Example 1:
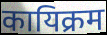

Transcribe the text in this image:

कायिक्रम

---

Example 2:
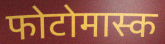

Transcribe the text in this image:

फोटोमास्क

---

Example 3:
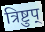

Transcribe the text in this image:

त्रिष्टुप्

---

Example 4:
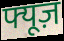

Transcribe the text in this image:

फ्यूज़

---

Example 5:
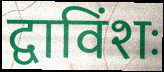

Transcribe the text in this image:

द्वाविंशः